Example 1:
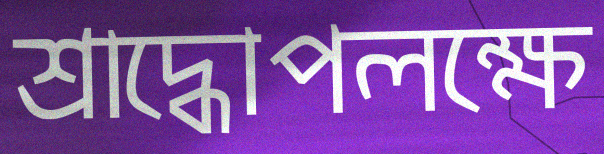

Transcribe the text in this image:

শ্রাদ্ধোপলক্ষে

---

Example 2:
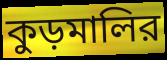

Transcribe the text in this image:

কুড়মালির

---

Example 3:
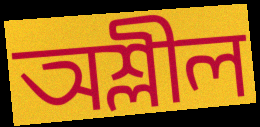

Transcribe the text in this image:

অশ্লীল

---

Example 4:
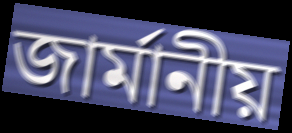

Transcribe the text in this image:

জার্মানীয়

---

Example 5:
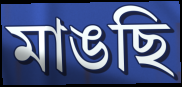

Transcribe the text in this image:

মাঙছি